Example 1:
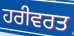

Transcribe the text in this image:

ਹਰੀਵਰਤ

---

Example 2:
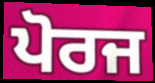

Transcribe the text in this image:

ਪੋਰਜ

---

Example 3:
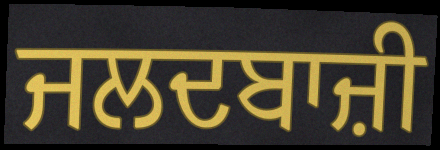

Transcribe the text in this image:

ਜਲਦਬਾਜ਼ੀ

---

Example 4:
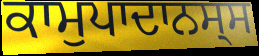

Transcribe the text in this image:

ਕਾਮੁਪਾਦਾਨਸ੍ਸ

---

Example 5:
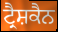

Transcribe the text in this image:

ਟ੍ਰੈਸ਼ਕੈਨ